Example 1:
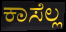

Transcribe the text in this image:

ಕಾಸೆಲ್ಲ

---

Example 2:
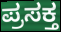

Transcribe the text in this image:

ಪ್ರಸಕ್ತ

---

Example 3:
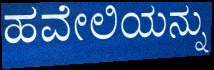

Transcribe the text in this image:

ಹವೇಲಿಯನ್ನು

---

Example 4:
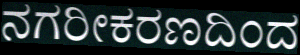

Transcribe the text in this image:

ನಗರೀಕರಣದಿಂದ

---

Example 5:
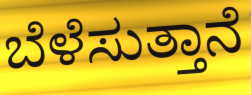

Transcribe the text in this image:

ಬೆಳೆಸುತ್ತಾನೆ